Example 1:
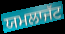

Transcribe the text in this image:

ਯਮਲਾਜੱਟ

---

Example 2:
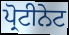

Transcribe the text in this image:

ਪ੍ਰੋਟੀਨੇਟ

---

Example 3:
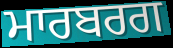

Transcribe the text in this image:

ਮਾਰਬਰਗ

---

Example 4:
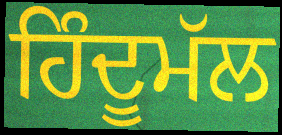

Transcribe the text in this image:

ਹਿੰਦੂਮੱਲ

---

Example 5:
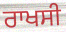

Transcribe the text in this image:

ਰਾਖਸੀ